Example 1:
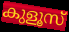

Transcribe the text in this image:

കുളൂസ്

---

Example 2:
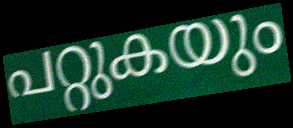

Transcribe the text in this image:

പറ്റുകയും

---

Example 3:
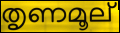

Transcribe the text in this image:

തൃണമൂല്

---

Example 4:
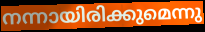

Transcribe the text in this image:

നന്നായിരിക്കുമെന്നു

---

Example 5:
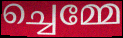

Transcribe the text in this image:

ച്ചെമ്മേ